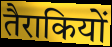
तैराकियों